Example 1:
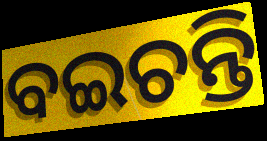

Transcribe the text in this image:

ବଇଚନ୍ତି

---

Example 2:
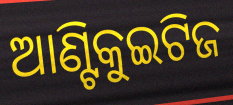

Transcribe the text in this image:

ଆଣ୍ଟିକୁଇଟିଜ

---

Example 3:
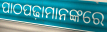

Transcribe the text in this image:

ପାଠପଢ଼ାମାନଙ୍କରେ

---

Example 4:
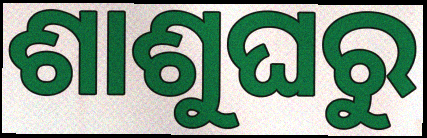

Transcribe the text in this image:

ଶାଶୁଘରୁ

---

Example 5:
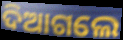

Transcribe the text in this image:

ଦିଆଗଲେ